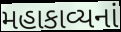
મહાકાવ્યનાં